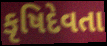
કૃષિદેવતા